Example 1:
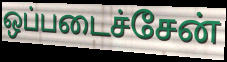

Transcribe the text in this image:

ஒப்படைச்சேன்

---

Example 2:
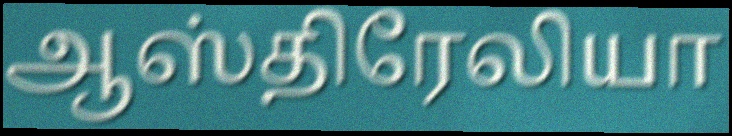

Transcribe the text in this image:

ஆஸ்திரேலியா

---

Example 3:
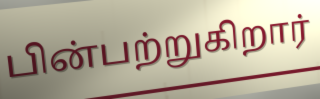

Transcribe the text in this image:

பின்பற்றுகிறார்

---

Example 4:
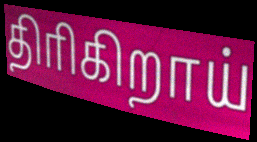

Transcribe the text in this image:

திரிகிறாய்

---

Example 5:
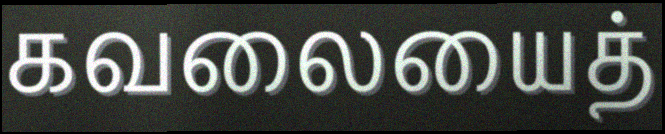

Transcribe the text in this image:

கவலையைத்